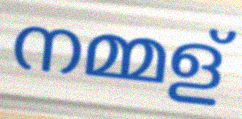
നമ്മള്